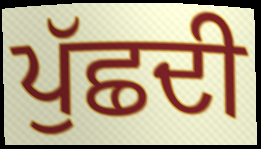
ਪੁੱਛਦੀ